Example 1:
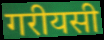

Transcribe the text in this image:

गरीयसी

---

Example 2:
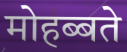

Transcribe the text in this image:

मोहब्बते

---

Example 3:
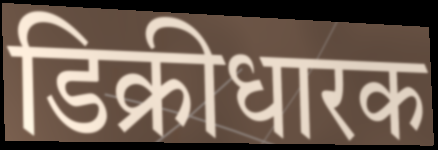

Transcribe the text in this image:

डिक्रीधारक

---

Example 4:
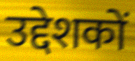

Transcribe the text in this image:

उद्देशकों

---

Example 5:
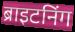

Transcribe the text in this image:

ब्राइटनिंग